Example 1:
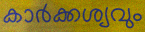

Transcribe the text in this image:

കാർക്കശ്യവും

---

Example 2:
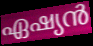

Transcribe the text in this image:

ഏഷ്യൻ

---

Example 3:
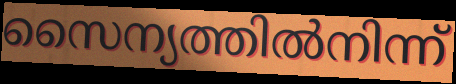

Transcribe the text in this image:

സൈന്യത്തിൽനിന്ന്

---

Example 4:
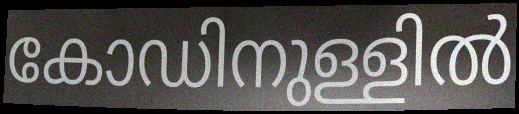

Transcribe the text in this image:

കോഡിനുള്ളിൽ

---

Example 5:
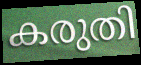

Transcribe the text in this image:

കരുതി